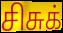
சிசுக்